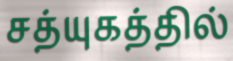
சத்யுகத்தில்